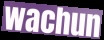
wachun